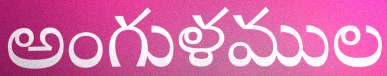
అంగుళముల